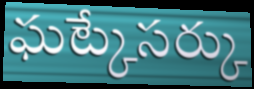
ఘట్కేసర్కు